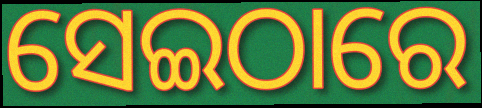
ସେଇଠାରେ